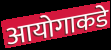
आयोगाकडे